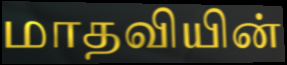
மாதவியின்